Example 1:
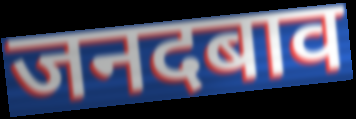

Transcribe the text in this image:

जनदबाव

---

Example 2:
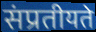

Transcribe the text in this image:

संप्रतीयते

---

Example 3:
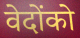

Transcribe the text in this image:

वेदोंको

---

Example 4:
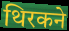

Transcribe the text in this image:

थिरकने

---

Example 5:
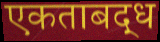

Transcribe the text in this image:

एकताबद्ध